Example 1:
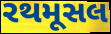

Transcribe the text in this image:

રથમૂસલ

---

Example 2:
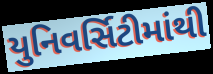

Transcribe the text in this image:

યુનિવર્સિટીમાંથી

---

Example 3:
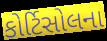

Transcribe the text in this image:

કોર્ટિસોલના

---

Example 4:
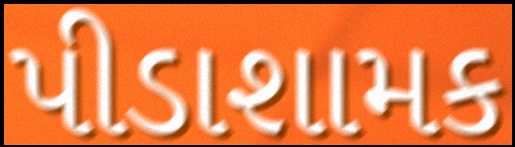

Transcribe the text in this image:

પીડાશામક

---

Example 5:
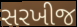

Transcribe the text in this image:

સરખીજ